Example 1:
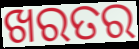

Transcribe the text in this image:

ଖରତର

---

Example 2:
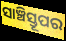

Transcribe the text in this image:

ସାଞ୍ଚିସ୍ତୂପର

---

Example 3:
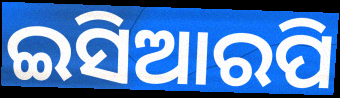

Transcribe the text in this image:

ଇସିଆରପି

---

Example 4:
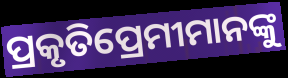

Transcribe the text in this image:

ପ୍ରକୃତିପ୍ରେମୀମାନଙ୍କୁ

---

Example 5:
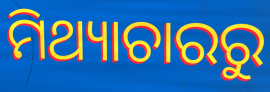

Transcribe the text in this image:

ମିଥ୍ୟାଚାରରୁ